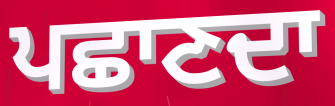
ਪਛਾਣਦਾ